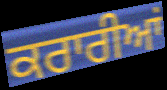
ਕਰਾਰੀਆਂ